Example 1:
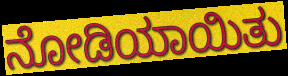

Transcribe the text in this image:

ನೋಡಿಯಾಯಿತು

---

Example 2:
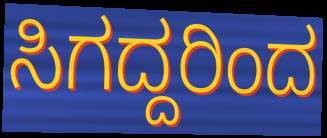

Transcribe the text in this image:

ಸಿಗದ್ದರಿಂದ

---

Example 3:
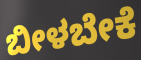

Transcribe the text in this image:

ಬೀಳಬೇಕೆ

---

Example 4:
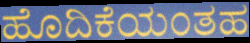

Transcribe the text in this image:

ಹೊದಿಕೆಯಂತಹ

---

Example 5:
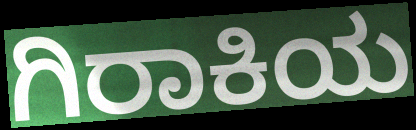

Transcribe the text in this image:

ಗಿರಾಕಿಯ